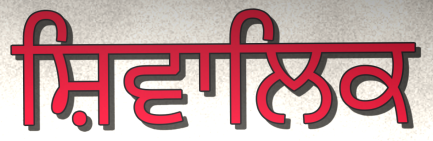
ਸ਼ਿਵਾਲਿਕ